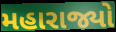
મહારાજ્યો